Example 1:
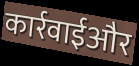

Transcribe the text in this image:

कार्रवाईऔर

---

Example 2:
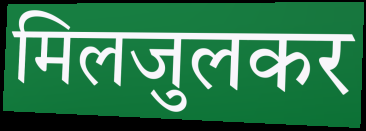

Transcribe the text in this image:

मिलजुलकर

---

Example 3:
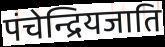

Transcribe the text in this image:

पंचेन्द्रियजाति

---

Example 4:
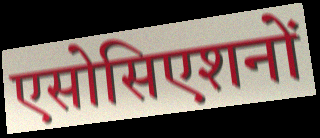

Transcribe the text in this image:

एसोसिएशनों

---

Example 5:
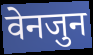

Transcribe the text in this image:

वेनजुन